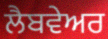
ਲੈਬਵੇਅਰ